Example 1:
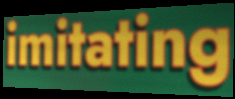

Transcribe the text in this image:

imitating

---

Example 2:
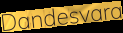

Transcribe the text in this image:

Dandesvara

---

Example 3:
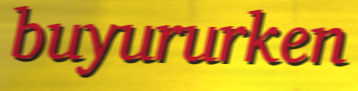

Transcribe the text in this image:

buyururken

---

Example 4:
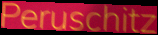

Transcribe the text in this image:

Peruschitz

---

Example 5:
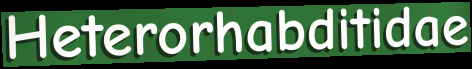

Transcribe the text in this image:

Heterorhabditidae